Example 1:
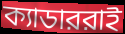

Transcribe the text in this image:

ক্যাডাররাই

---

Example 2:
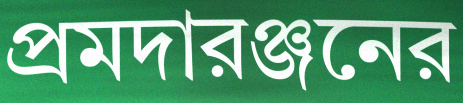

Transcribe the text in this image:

প্রমদারঞ্জনের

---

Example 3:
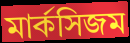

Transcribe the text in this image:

মার্কসিজম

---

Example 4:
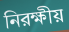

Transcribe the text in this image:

নিরক্ষীয়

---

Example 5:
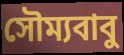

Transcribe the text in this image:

সৌম্যবাবু